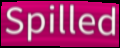
Spilled